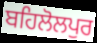
ਬਹਿਲੋਲਪੁਰ